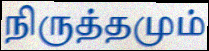
நிருத்தமும்